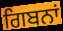
ਗਿਬਨਾਂ